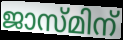
ജാസ്മിന്